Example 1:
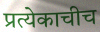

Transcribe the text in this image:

प्रत्येकाचीच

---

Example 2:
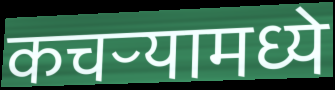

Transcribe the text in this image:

कचऱ्यामध्ये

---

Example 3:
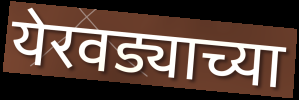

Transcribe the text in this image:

येरवड्याच्या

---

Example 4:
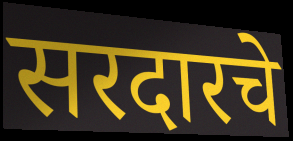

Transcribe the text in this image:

सरदारचे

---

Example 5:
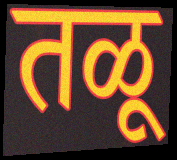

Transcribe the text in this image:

तळू